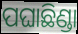
ପଘାଛିଣ୍ଡା